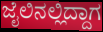
ಜೈಲಿನಲ್ಲಿದ್ದಾಗ